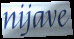
nijave